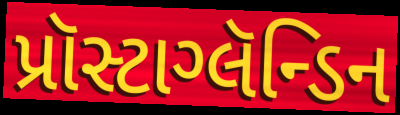
પ્રૉસ્ટાગ્લૅન્ડિન